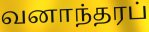
வனாந்தரப்